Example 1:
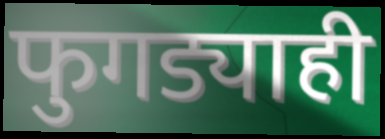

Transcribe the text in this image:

फुगड्याही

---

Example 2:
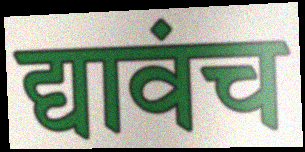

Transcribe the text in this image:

द्यावंच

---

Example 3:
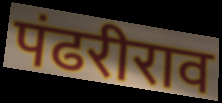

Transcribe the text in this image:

पंढरीराव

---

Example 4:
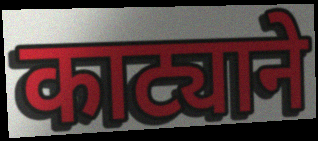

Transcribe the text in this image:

काट्याने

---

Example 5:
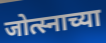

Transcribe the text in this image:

जोत्स्नाच्या